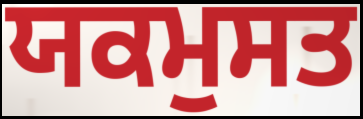
ਯਕਮੁਸਤ